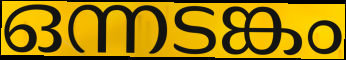
ഒന്നടങ്കം